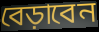
বেড়াবেন